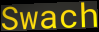
Swach